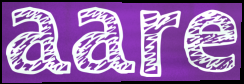
aare